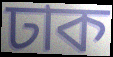
ঢাক